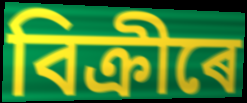
বিক্ৰীৰে